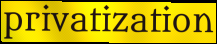
privatization